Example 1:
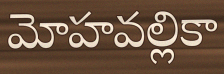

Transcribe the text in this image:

మోహవల్లికా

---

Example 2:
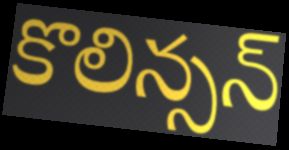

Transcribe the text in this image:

కొలిన్సన్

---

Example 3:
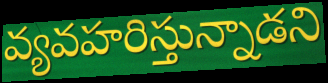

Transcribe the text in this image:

వ్యవహరిస్తున్నాడని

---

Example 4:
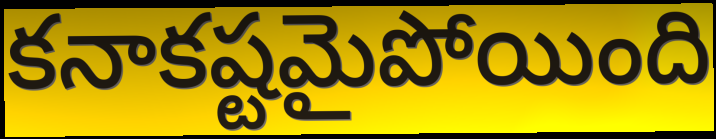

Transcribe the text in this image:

కనాకష్టమైపోయింది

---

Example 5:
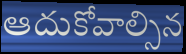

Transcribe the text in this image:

ఆదుకోవాల్సిన